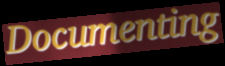
Documenting